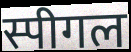
स्पीगल